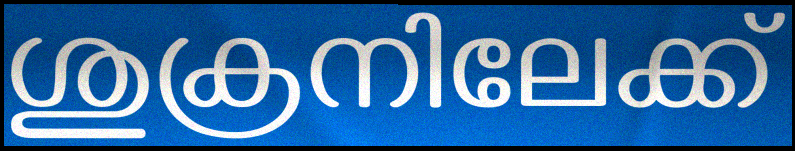
ശുക്രനിലേക്ക്